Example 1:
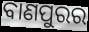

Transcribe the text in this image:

ବାଣପୁରର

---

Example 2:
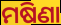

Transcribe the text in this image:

ମଷିଣା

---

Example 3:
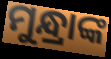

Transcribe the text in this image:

ମୁନ୍ଧ୍ରାଙ୍କ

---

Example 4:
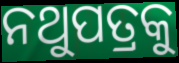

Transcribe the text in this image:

ନଥୁପତ୍ରକୁ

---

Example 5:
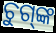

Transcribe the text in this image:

ଚୁଗ୍‌ଙ୍କ